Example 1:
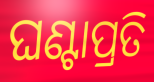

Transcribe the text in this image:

ଘଣ୍ଟାପ୍ରତି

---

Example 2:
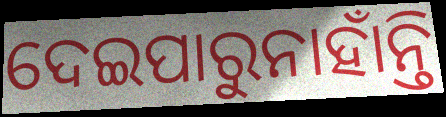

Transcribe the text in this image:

ଦେଇପାରୁନାହାଁନ୍ତି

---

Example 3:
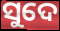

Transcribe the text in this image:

ସୁଦେ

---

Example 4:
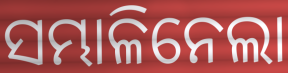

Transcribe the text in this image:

ସମ୍ଭାଳିନେଲା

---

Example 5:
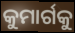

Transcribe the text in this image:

କୁମାର୍ଗକୁ